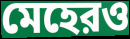
মেহেরও